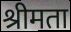
श्रीमता